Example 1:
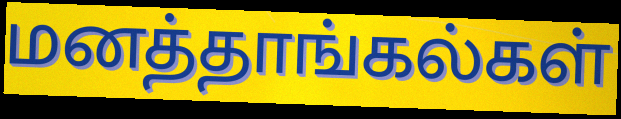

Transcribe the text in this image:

மனத்தாங்கல்கள்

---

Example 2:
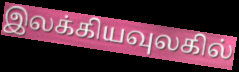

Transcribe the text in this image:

இலக்கியவுலகில்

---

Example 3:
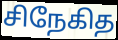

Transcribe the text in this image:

சிநேகித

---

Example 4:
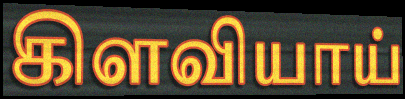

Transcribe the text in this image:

கிளவியாய்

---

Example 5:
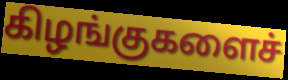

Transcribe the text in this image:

கிழங்குகளைச்